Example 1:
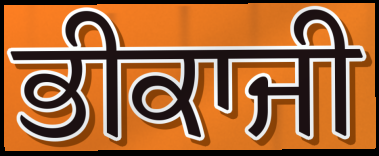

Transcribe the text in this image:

ਭੀਕਾਜੀ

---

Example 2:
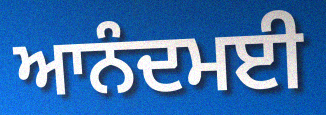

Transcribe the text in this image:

ਆਨੰਦਮਈ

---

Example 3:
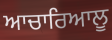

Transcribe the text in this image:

ਆਚਾਰਿਆਲੂ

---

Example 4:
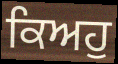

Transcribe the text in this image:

ਕਿਅਹੁ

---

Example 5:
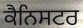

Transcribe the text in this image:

ਕੈਨਿਸਟਰ